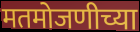
मतमोजणीच्या